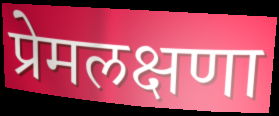
प्रेमलक्षणा